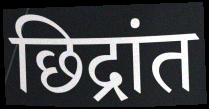
छिद्रांत